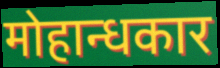
मोहान्धकार